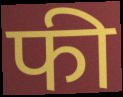
फी